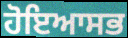
ਹੋਇਆਸਭ